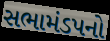
સભામંડપનો